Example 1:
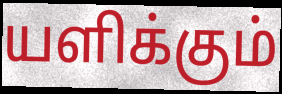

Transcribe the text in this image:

யளிக்கும்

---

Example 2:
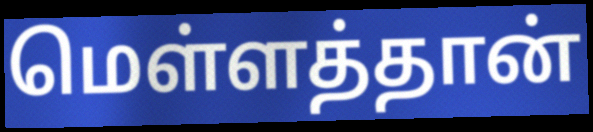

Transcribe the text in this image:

மெள்ளத்தான்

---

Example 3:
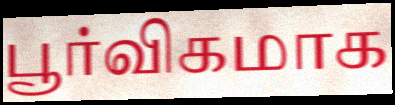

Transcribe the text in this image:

பூர்விகமாக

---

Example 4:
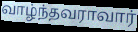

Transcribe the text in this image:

வாழ்ந்தவராவார்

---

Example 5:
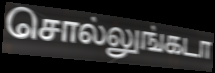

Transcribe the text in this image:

சொல்லுங்கடா